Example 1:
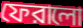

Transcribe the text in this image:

ফেরালো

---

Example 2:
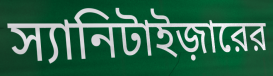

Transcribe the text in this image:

স্যানিটাইজ়ারের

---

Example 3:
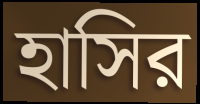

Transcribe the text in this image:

হাসির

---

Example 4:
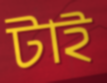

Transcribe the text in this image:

টাই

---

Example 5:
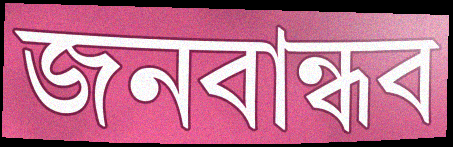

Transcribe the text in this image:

জনবান্ধব